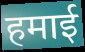
हमाई